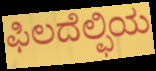
ಫಿಲದೆಲ್ಫಿಯ